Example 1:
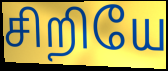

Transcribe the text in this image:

சிறியே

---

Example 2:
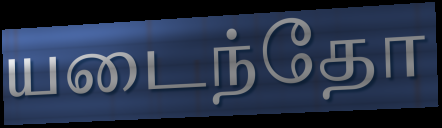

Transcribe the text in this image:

யடைந்தோ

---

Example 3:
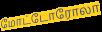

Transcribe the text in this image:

மோட்டோரோலா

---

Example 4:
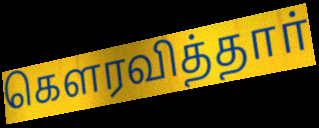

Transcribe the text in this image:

கௌரவித்தார்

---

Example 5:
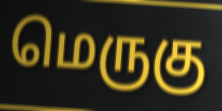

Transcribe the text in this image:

மெருகு